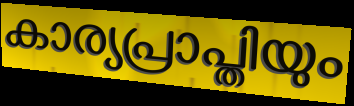
കാര്യപ്രാപ്തിയും